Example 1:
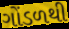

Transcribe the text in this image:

ગોંડળથી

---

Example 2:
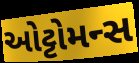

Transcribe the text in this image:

ઓટ્ટોમન્સ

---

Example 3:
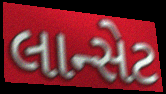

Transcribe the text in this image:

લાન્સેટ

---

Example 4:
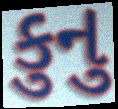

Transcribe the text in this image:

કુનુ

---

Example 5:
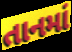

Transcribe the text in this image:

તાનમાં